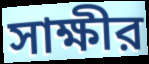
সাক্ষীর